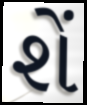
શેં